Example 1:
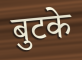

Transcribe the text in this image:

बुटके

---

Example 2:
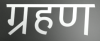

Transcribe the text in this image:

ग्रहण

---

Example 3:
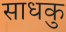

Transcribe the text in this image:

साधकु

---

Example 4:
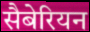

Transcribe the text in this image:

सैबेरियन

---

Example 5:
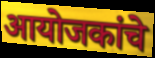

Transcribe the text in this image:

आयोजकांचे